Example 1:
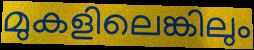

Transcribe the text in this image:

മുകളിലെങ്കിലും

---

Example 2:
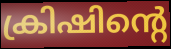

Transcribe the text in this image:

ക്രിഷിന്റെ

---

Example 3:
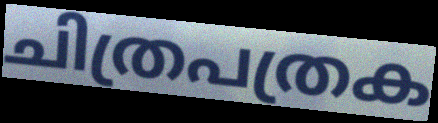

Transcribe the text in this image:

ചിത്രപത്രക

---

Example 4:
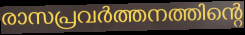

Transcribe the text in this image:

രാസപ്രവർത്തനത്തിന്റെ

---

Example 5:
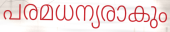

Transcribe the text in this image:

പരമധന്യരാകും